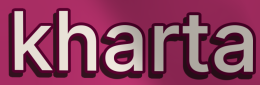
kharta